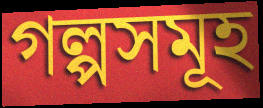
গল্পসমূহ